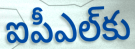
ఐపీఎల్‌కు